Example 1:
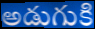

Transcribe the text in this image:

అడుగుకి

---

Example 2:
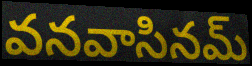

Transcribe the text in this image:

వనవాసినమ్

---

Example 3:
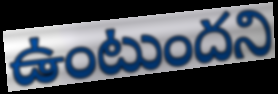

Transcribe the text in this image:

ఉంటుందని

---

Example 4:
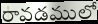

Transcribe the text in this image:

రావడములో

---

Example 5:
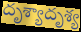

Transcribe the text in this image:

దృశ్యాదృశ్య